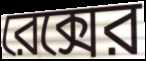
রেক্সের